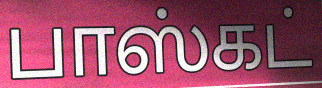
பாஸ்கட்